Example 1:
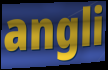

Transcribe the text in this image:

angli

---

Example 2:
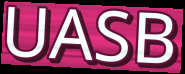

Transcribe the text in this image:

UASB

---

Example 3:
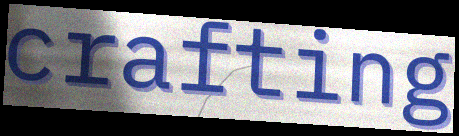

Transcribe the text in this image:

crafting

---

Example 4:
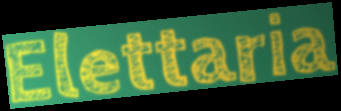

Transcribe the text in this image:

Elettaria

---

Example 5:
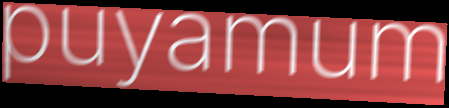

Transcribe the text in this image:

puyamum